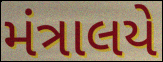
મંત્રાલયે